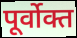
पूर्वोक्त